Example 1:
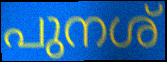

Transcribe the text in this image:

പുനശ്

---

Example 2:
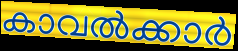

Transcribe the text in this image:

കാവൽക്കാർ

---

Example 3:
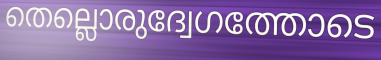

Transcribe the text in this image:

തെല്ലൊരുദ്വേഗത്തോടെ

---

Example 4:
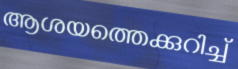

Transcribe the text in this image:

ആശയത്തെക്കുറിച്ച്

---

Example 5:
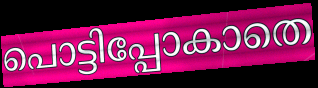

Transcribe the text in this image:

പൊട്ടിപ്പോകാതെ